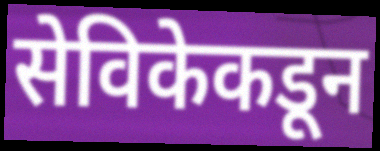
सेविकेकडून